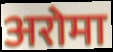
अरोमा